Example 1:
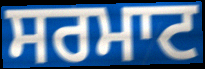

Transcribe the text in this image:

ਸਰਮਾਟ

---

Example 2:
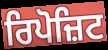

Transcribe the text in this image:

ਰਿਪੋਜ਼ਿਟ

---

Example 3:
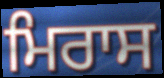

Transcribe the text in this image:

ਮਿਰਾਸ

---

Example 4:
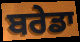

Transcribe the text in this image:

ਬਰੇਡਾ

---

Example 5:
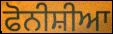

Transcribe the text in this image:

ਫੋਨੀਸ਼ੀਆ